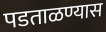
पडताळण्यास